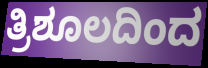
ತ್ರಿಶೂಲದಿಂದ